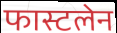
फास्टलेन